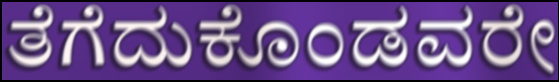
ತೆಗೆದುಕೊಂಡವರೇ